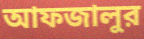
আফজালুর